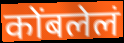
कोंबलेलं